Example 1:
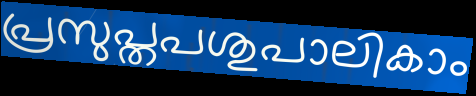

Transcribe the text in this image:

പ്രസുപ്തപശുപാലികാം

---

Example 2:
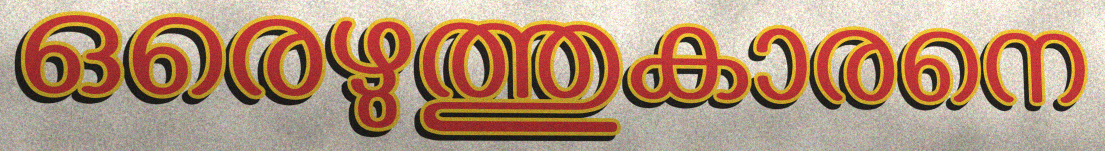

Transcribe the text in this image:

ഒരെഴുത്തുകാരനെ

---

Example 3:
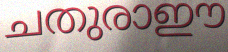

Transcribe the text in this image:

ചതുരാഈ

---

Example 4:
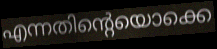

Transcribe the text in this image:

എന്നതിന്റെയൊക്കെ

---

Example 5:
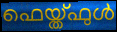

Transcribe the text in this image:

ഫെയ്ത്ഫുൾ